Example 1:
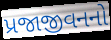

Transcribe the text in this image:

પ્રજાજીવનનો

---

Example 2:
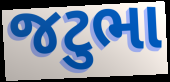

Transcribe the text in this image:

જટુભા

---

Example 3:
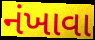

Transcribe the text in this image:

નંખાવા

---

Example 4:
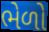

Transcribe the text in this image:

ભેળો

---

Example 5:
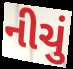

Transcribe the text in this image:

નીચું